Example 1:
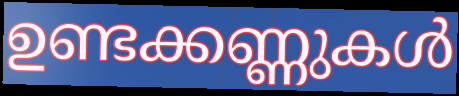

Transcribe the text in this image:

ഉണ്ടക്കണ്ണുകൾ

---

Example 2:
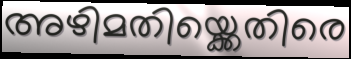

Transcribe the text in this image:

അഴിമതിയ്ക്കെതിരെ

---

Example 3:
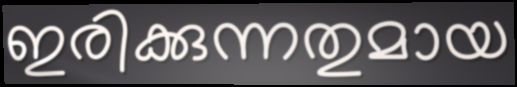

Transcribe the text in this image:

ഇരിക്കുന്നതുമായ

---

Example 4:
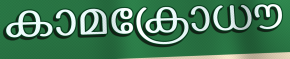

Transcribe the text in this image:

കാമക്രോധൗ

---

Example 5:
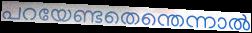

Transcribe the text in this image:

പറയേണ്ടതെന്തെന്നാൽ